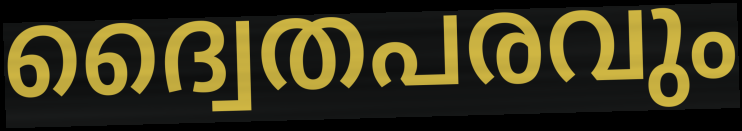
ദ്വൈതപരവും